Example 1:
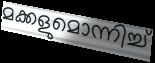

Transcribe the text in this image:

മക്കളുമൊന്നിച്ച്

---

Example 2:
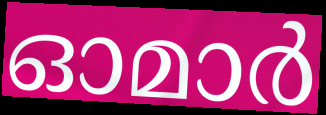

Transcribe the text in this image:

ഓമാർ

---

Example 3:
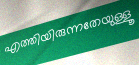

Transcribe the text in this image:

എത്തിയിരുന്നതേയുള്ളൂ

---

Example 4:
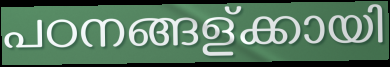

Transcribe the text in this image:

പഠനങ്ങള്ക്കായി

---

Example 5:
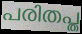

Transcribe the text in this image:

പരിതപ്ത